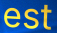
est